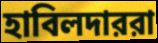
হাবিলদাররা